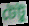
টেটু